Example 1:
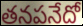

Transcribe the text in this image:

తనపనేదో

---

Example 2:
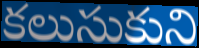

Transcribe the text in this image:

కలుసుకుని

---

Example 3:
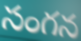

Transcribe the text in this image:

సంగన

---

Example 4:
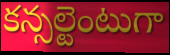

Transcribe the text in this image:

కన్సల్టెంటుగా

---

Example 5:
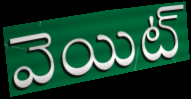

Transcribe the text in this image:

వెయిట్